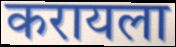
करायला